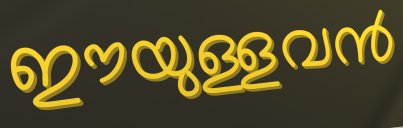
ഈയുള്ളവൻ